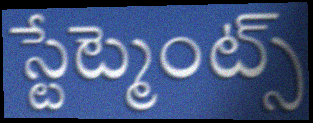
స్టేట్మెంట్స్